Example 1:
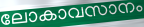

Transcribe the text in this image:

ലോകാവസാനം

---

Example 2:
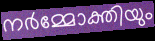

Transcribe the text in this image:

നർമ്മോക്തിയും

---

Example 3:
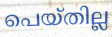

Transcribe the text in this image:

പെയ്തില്ല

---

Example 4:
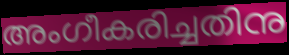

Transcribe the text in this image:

അംഗീകരിച്ചതിനു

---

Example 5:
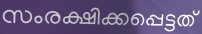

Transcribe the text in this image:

സംരക്ഷിക്കപ്പെട്ടത്